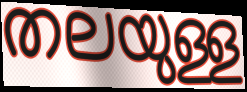
തലയുള്ള